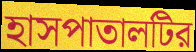
হাসপাতালটির